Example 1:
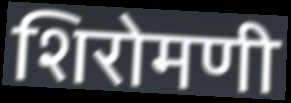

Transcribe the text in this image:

शिरोमणी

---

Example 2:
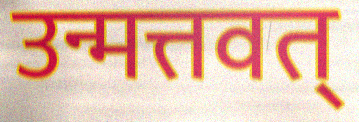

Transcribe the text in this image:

उन्मत्तवत्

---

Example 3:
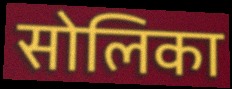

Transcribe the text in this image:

सोलिका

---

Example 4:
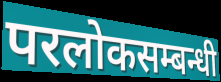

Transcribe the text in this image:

परलोकसम्बन्धी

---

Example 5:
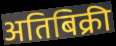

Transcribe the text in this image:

अतिबिक्री